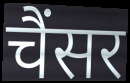
चैंसर